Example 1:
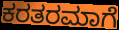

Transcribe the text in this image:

ಕರತರಮಾಗೆ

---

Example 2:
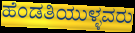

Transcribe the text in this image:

ಹೆಂಡತಿಯುಳ್ಳವರು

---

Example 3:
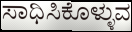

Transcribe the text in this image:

ಸಾಧಿಸಿಕೊಳ್ಳುವ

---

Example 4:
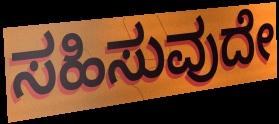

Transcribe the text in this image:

ಸಹಿಸುವುದೇ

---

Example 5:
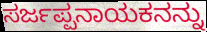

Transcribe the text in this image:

ಸರ್ಜಪ್ಪನಾಯಕನನ್ನು